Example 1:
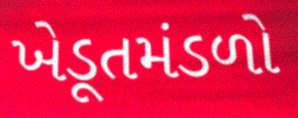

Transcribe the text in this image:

ખેડૂતમંડળો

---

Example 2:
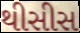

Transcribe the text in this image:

થીસીસ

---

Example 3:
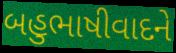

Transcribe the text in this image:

બહુભાષીવાદને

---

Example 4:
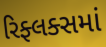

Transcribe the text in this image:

રિફ્લક્સમાં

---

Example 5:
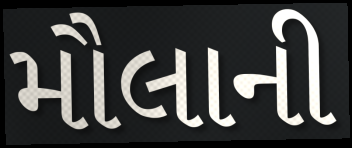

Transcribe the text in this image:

મૌલાની